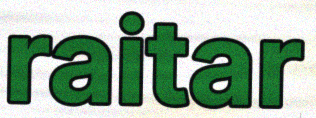
raitar